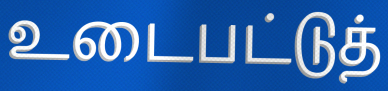
உடைபட்டுத்